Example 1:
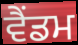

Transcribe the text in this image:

ਵੈਂਡਮ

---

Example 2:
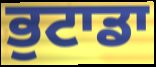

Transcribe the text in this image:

ਭੁਟਾਡਾ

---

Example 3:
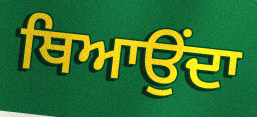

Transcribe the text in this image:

ਥਿਆਉਂਦਾ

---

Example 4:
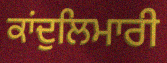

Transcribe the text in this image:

ਕਾਂਦੁਲਿਮਾਰੀ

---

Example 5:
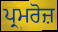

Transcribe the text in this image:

ਪ੍ਰਮਰੋਜ਼